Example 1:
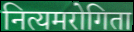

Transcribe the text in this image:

नित्यमरोगिता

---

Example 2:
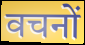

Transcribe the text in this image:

वचनों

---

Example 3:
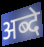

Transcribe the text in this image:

अब्दे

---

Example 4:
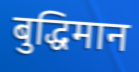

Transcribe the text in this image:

बुद्धिमान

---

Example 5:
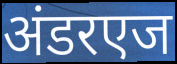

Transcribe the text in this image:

अंडरएज